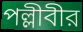
পল্লীবীর